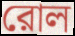
রোল